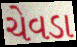
ચેવડા